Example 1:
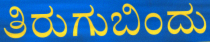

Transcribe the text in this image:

ತಿರುಗುಬಿಂದು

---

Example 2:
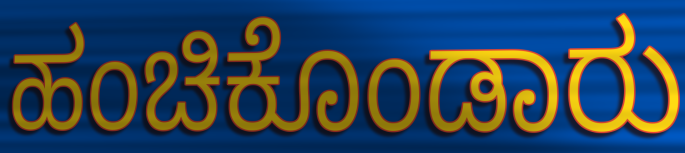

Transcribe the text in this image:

ಹಂಚಿಕೊಂಡಾರು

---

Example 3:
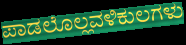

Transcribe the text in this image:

ಪಾಡಲೊಲ್ಲವಳಿಕುಲಗಳು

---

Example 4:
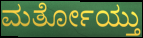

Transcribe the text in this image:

ಮರ್ತೋಯ್ತು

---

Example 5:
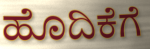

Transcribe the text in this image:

ಹೊದಿಕೆಗೆ